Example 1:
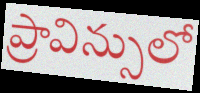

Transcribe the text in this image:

ప్రావిన్సులో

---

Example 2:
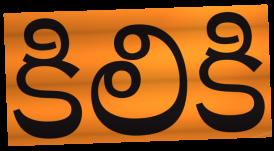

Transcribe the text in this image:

కిలికి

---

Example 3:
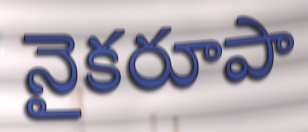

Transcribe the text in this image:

నైకరూపా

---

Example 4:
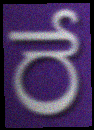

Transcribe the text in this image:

రే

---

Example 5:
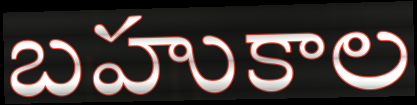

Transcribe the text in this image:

బహుకాల